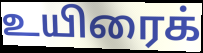
உயிரைக்